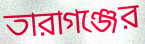
তারাগঞ্জের